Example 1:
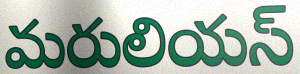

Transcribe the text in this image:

మరులియస్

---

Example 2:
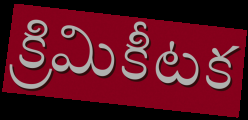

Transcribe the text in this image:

క్రిమికీటక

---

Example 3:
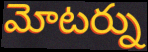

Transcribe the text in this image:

మోటర్ను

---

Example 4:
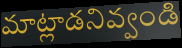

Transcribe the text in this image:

మాట్లాడనివ్వండి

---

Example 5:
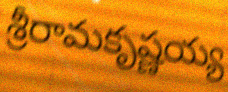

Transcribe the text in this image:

శ్రీరామకృష్ణయ్య